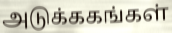
அடுக்ககங்கள்